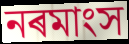
নৰমাংস